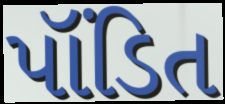
પૉંડિત